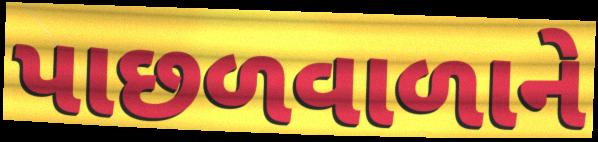
પાછળવાળાને